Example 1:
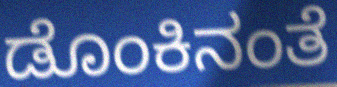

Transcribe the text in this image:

ಡೊಂಕಿನಂತೆ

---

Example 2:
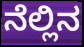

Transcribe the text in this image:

ನೆಲ್ಲಿನ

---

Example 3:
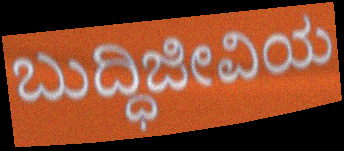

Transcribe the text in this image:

ಬುದ್ಧಿಜೀವಿಯ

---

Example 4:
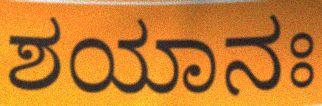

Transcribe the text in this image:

ಶಯಾನಃ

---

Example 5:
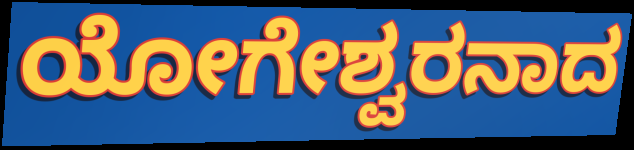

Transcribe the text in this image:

ಯೋಗೇಶ್ವರನಾದ